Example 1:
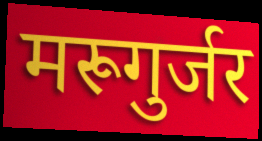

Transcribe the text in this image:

मरूगुर्जर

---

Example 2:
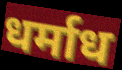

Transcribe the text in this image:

धर्माध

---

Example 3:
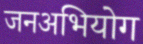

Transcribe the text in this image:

जनअभियोग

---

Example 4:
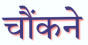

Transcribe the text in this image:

चौंकने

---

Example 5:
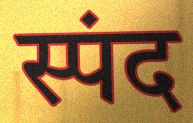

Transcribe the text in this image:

स्पंद